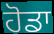
ਹੋਡਾ